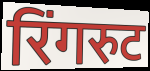
रिंगरुट